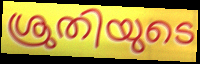
ശ്രുതിയുടെ